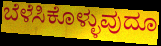
ಬೆಳೆಸಿಕೊಳ್ಳುವುದೂ